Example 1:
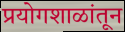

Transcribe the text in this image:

प्रयोगशाळांतून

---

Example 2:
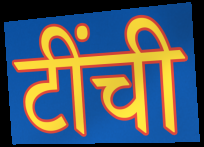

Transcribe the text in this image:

टींची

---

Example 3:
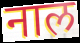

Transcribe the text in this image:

नाल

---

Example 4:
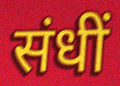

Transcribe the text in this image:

संधीं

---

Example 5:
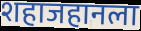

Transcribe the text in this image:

शहाजहानला